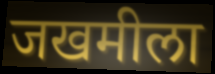
जखमीला